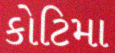
કોટિમા